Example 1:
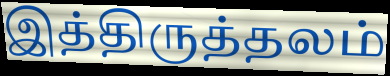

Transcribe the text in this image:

இத்திருத்தலம்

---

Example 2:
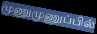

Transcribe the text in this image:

முணுமுணுப்பில்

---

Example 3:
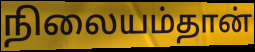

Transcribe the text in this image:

நிலையம்தான்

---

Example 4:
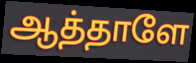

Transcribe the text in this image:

ஆத்தாளே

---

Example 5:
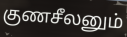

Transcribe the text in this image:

குணசீலனும்